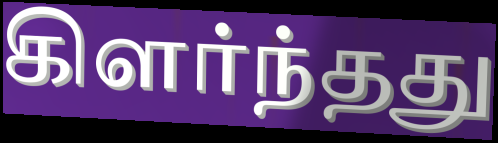
கிளர்ந்தது